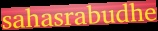
sahasrabudhe